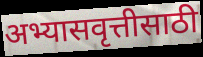
अभ्यासवृत्तीसाठी